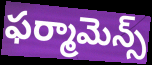
ఫర్మామెన్స్